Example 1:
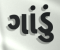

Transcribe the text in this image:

ગાંડું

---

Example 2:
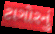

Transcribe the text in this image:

ટાગોરનું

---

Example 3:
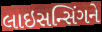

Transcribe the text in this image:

લાઇસન્સિંગને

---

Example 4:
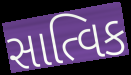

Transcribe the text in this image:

સાત્વિક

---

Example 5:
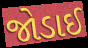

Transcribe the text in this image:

જોડાઈ